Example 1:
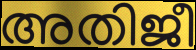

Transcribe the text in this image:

അതിജീ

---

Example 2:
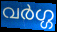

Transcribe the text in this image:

വർഗ്ഗ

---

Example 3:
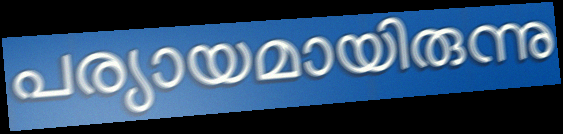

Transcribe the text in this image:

പര്യായമായിരുന്നു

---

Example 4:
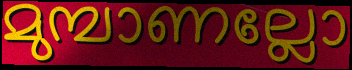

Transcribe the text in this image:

മുമ്പാണല്ലോ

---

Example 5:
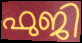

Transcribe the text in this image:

ഫുജി